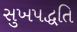
સુખપદ્ધતિ